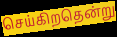
செய்கிறதென்று